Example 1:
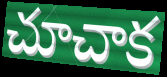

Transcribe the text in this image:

చూచాక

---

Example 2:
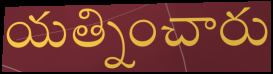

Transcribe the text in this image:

యత్నించారు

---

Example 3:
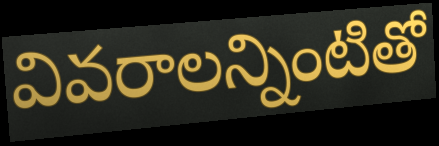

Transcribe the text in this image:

వివరాలన్నింటితో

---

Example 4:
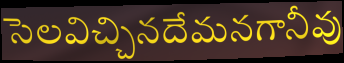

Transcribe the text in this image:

సెలవిచ్చినదేమనగానీవు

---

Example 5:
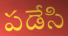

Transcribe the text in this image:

పడేసి